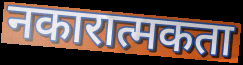
नकारात्मकता